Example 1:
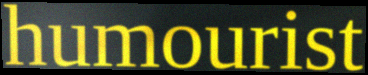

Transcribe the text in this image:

humourist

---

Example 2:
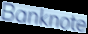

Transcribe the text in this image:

Banknote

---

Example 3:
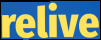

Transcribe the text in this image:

relive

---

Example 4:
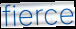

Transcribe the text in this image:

fierce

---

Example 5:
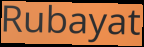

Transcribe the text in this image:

Rubayat